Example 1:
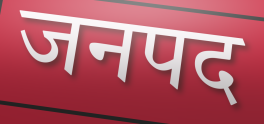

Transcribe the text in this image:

जनपद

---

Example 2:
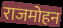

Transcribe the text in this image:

राजमोहन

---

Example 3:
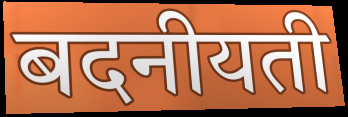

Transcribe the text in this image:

बदनीयती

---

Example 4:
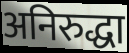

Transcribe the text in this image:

अनिरुद्धा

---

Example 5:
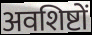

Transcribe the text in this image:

अवशिष्टों